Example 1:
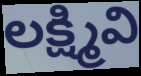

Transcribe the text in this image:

లక్ష్మివి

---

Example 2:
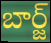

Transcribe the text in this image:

బార్జ్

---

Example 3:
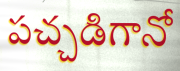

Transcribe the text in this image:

పచ్చడిగానో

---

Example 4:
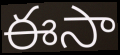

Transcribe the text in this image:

ఈసా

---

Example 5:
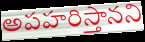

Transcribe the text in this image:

అపహరిస్తానని